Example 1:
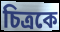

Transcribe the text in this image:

চিত্রকে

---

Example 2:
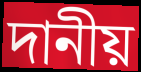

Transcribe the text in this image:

দানীয়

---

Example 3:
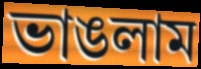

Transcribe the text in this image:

ভাঙলাম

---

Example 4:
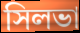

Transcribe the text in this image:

সিলভা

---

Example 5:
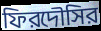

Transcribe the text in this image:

ফিরদৌসির